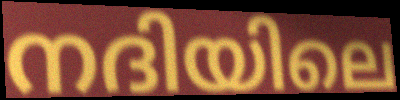
നദിയിലെ